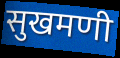
सुखमणी